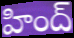
హింద్